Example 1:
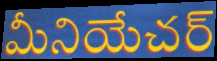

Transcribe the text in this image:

మీనియేచర్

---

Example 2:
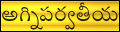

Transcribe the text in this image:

అగ్నిపర్వతీయ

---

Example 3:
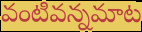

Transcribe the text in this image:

వంటివన్నమాట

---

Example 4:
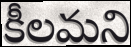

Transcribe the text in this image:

కీలమని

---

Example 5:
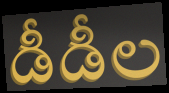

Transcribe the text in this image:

డీడీల